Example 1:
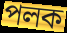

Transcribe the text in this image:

পলক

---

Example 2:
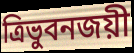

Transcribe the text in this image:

ত্রিভুবনজয়ী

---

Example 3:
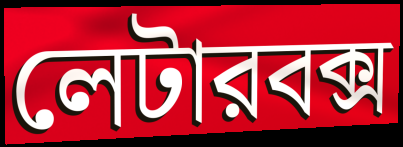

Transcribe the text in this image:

লেটারবক্স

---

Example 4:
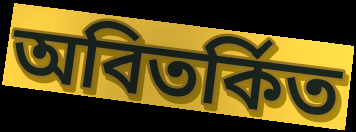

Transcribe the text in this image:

অবিতর্কিত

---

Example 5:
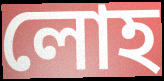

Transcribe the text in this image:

লোহ